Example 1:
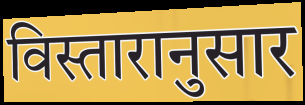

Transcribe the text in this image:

विस्तारानुसार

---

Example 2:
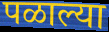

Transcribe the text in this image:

पळाल्या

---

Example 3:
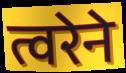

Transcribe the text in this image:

त्वरेने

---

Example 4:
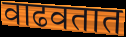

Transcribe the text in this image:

वाढवतात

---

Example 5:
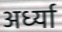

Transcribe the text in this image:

अर्ध्या